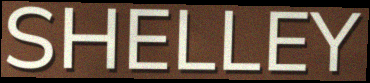
SHELLEY